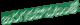
జరగకపోవటంతో